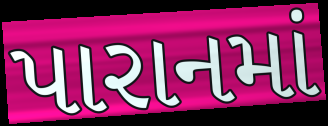
પારાનમાં